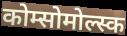
कोम्सोमोल्स्क